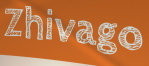
Zhivago